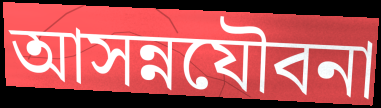
আসন্নযৌবনা